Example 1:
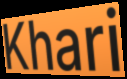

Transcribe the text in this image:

Khari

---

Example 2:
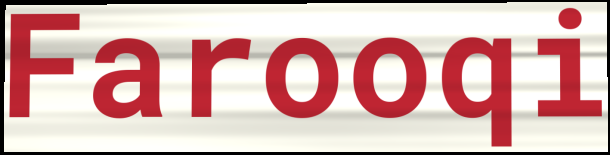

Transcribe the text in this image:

Farooqi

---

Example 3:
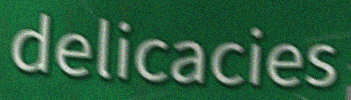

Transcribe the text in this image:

delicacies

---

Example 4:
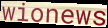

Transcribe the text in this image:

wionews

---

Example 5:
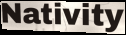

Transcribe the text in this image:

Nativity